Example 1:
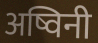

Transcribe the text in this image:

अष्विनी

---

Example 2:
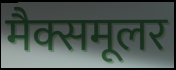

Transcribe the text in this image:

मैक्समूलर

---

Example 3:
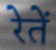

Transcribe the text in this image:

रेतें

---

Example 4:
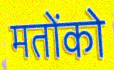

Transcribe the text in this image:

मतोंको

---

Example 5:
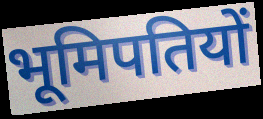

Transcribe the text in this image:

भूमिपतियों